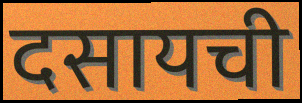
दसायची